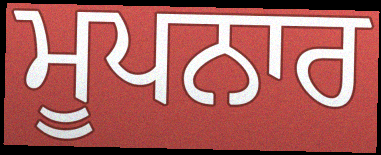
ਮੂਪਨਾਰ